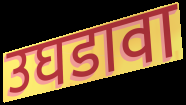
उघडावा